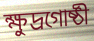
ক্ষুদ্রগোষ্ঠী